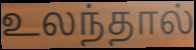
உலந்தால்